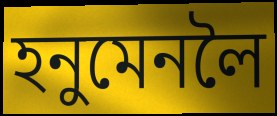
হনুমেনলৈ